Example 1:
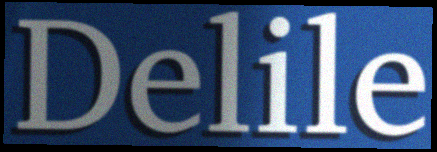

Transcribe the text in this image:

Delile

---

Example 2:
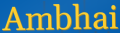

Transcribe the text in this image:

Ambhai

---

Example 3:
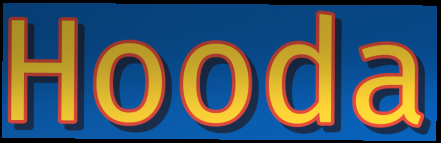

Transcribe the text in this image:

Hooda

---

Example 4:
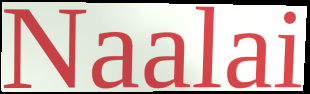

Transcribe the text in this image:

Naalai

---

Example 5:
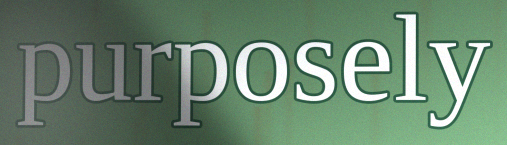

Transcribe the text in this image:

purposely